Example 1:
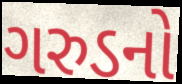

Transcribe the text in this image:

ગરુડનો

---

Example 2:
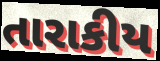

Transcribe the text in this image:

તારાકીય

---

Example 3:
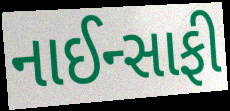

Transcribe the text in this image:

નાઈન્સાફી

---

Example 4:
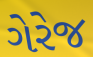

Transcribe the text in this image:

ગેરેજ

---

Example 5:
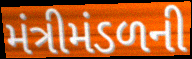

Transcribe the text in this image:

મંત્રીમંડળની